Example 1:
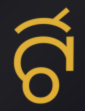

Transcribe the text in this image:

ର୍ଟି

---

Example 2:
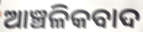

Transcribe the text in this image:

ଆଞ୍ଚଳିକବାଦ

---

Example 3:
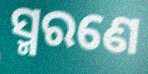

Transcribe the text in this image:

ସ୍ମରଣେ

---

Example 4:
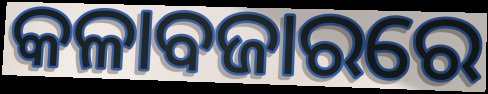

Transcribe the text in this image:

କଳାବଜାରରେ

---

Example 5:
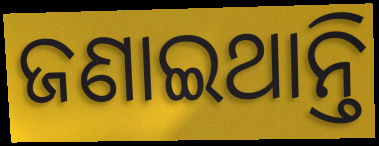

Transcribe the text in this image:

ଜଣାଇଥାନ୍ତି